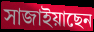
সাজাইয়াছেন